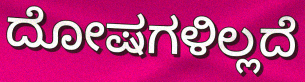
ದೋಷಗಳಿಲ್ಲದೆ